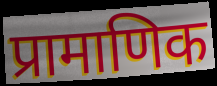
प्रामाणिक